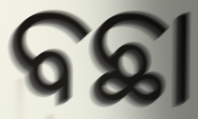
ବଛା